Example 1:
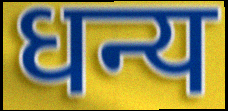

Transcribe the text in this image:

धन्य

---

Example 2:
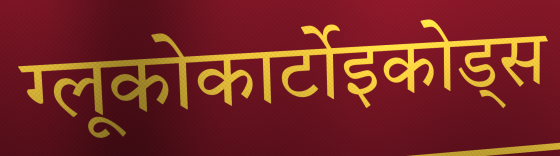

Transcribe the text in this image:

ग्लूकोकार्टोइकोड्स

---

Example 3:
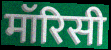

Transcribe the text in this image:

मॉरिसी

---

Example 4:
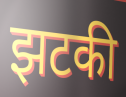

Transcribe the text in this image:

झटकी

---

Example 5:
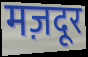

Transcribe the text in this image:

मज़दूर